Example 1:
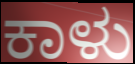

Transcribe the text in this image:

ಕಾಳು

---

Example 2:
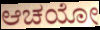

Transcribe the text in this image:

ಆಚಯೋ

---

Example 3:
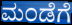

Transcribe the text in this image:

ಮಂಡೆಗೆ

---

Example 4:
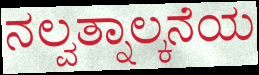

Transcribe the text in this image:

ನಲ್ವತ್ನಾಲ್ಕನೆಯ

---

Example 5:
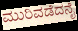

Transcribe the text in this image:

ಮುರಿವಡೆದನೈ